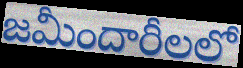
జమీందారీలలో